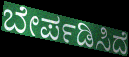
ಬೇರ್ಪಡಿಸಿದೆ